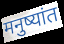
मनुष्यांत